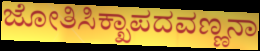
ಜೋತಿಸಿಕ್ಖಾಪದವಣ್ಣನಾ